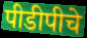
पीडीपीचे